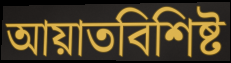
আয়াতবিশিষ্ট